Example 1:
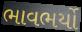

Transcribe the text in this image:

ભાવભર્યો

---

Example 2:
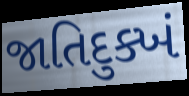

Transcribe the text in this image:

જાતિદુક્ખં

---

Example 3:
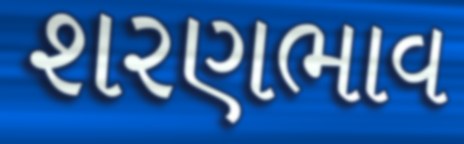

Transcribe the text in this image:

શરણભાવ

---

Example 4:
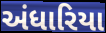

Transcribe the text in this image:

અંધારિયા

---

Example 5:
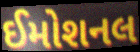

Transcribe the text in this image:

ઈમોશનલ